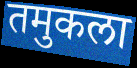
तमुकला